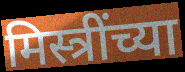
मिस्त्रींच्या